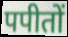
पपीतों